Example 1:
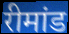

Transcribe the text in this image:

रीमांड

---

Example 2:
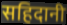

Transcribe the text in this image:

सहिदानी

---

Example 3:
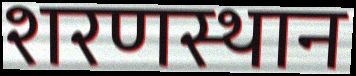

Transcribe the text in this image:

शरणस्थान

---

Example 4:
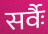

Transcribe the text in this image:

सर्वैः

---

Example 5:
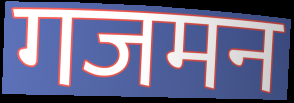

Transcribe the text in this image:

गजमन